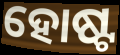
ହୋଷ୍ଟ